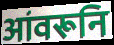
आंवरूनि